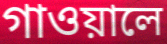
গাওয়ালে